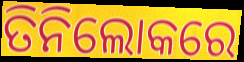
ତିନିଲୋକରେ